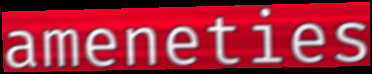
ameneties